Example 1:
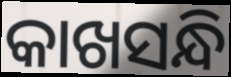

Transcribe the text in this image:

କାଖସନ୍ଧି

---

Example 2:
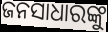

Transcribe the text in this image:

ଜନସାଧାରଙ୍କୁ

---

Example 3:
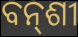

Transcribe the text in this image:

ବନ୍‌ଶୀ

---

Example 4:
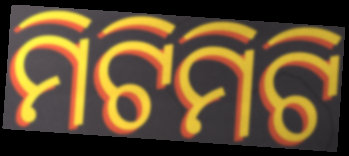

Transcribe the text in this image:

ମିଟିମିଟି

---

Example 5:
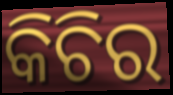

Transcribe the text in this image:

କିଚିର